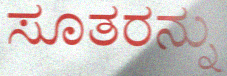
ಸೂತರನ್ನು